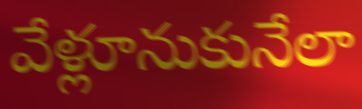
వేళ్లూనుకునేలా